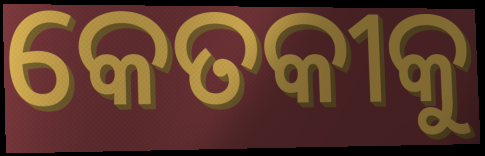
କେତକୀକୁ